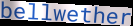
bellwether